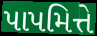
પાપમિત્તે